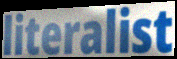
literalist